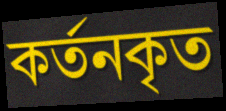
কর্তনকৃত